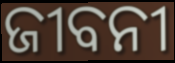
ଜୀବନୀ